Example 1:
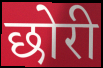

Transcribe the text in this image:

छोरी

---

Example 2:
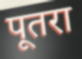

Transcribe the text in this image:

पूतरा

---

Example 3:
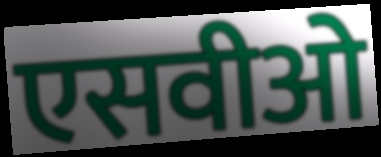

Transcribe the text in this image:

एसवीओ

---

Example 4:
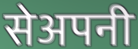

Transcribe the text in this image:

सेअपनी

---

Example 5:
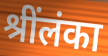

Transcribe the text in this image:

श्रींलंका